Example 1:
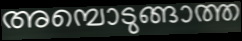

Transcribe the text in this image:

അമ്പൊടുങ്ങാത്ത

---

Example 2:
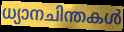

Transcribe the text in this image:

ധ്യാനചിന്തകൾ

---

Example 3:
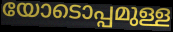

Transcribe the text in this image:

യോടൊപ്പമുള്ള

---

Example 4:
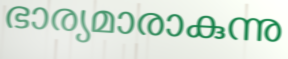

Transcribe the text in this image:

ഭാര്യമാരാകുന്നു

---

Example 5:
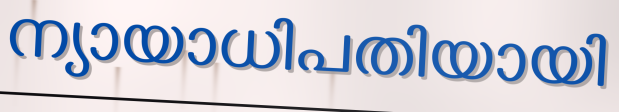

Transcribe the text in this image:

ന്യായാധിപതിയായി